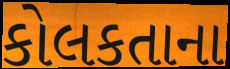
કોલકતાના